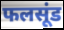
फलसूंड